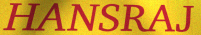
HANSRAJ